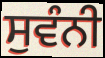
ਸੁਵੰਨੀ